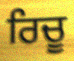
ਰਿਚੂ